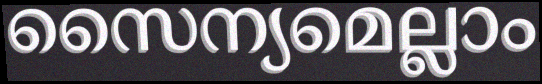
സൈന്യമെല്ലാം